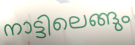
നാട്ടിലെങ്ങും